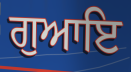
ਗੁਆਇ